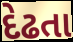
દેઢતા